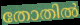
തോതിൽ